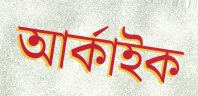
আর্কাইক